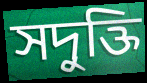
সদুক্তি